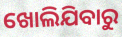
ଖୋଲିଯିବାରୁ